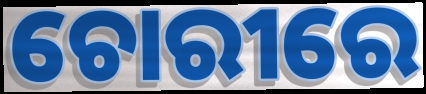
ଚୋରୀରେ